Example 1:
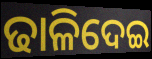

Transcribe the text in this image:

ଢାଳିଦେଇ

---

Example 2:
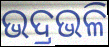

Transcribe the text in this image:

ଭଦ୍ରଭଳି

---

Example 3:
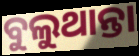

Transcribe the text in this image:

ବୁଲୁଥାନ୍ତା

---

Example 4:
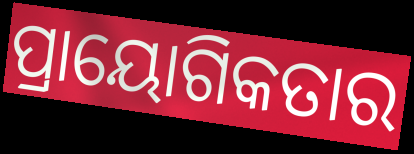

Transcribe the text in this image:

ପ୍ରାୟୋଗିକତାର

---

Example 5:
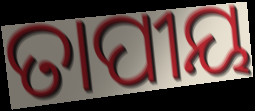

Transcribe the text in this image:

ତାପୀୟ